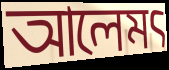
আলেমৎ